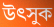
উৎসুক